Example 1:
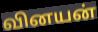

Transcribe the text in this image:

வினயன்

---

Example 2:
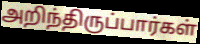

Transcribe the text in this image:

அறிந்திருப்பார்கள்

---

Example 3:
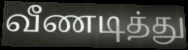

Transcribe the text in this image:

வீணடித்து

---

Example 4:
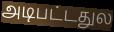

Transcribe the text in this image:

அடிபட்டதுல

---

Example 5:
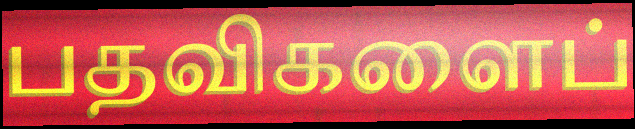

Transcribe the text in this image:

பதவிகளைப்